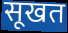
सूखत